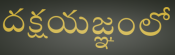
దక్షయజ్ఞంలో